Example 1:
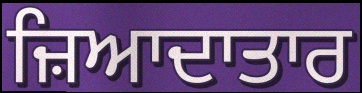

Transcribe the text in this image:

ਜ਼ਿਆਦਾਤਾਰ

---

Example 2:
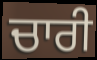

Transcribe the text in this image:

ਚਾਰੀ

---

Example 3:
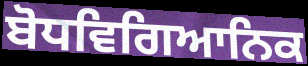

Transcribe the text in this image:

ਬੋਧਵਿਗਿਆਨਿਕ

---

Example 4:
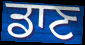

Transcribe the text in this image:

ਡਾਣ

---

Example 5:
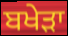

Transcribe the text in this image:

ਬਖੇੜਾ